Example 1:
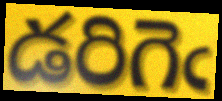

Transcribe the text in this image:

డరిగెఁ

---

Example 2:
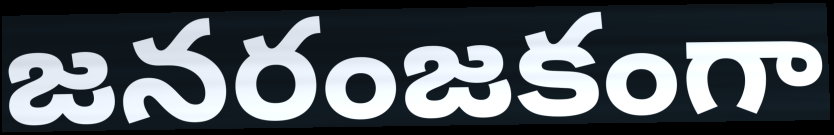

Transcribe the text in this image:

జనరంజకంగా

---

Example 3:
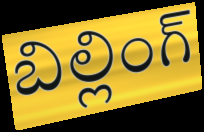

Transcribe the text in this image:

బిల్లింగ్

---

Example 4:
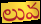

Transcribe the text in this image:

లువ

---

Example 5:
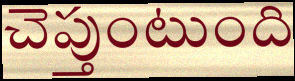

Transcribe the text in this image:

చెప్తుంటుంది